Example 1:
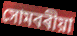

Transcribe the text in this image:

সোমবৰীয়া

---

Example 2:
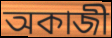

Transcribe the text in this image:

অকাজী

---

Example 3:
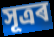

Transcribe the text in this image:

সূত্ৰৰ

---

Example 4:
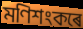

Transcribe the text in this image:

মণিশংকৰে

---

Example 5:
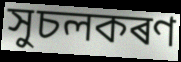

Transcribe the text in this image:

সুচলকৰণ